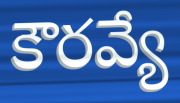
కౌరవ్యే